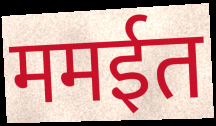
ममईत